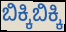
ಬಿಕ್ಕಿಬಿಕ್ಕಿ